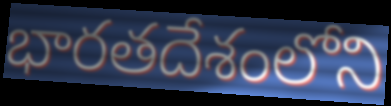
భారతదేశంలోని